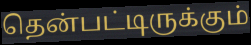
தென்பட்டிருக்கும்